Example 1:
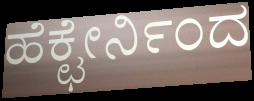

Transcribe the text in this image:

ಹೆಕ್ಟೇರ್ನಿಂದ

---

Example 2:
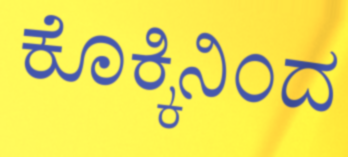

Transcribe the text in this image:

ಕೊಕ್ಕಿನಿಂದ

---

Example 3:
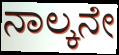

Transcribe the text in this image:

ನಾಲ್ಕನೇ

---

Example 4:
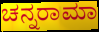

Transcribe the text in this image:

ಚನ್ನರಾಮಾ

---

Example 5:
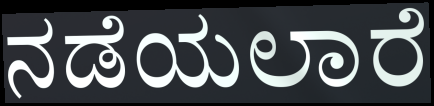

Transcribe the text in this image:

ನಡೆಯಲಾರೆ